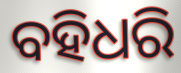
ବହିଧରି